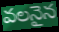
వలనైన